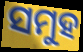
ସମୁହ